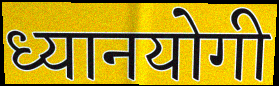
ध्यानयोगी